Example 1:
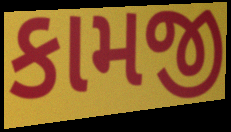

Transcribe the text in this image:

કામજી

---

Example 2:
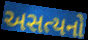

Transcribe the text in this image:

અસત્યનો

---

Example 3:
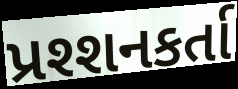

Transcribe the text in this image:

પ્રશ્શનકર્તા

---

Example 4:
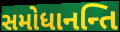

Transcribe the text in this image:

સમોધાનન્તિ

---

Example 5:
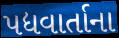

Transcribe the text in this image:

પદ્યવાર્તાના